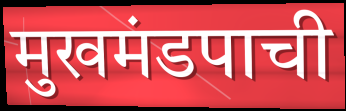
मुखमंडपाची